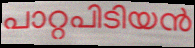
പാറ്റപിടിയൻ